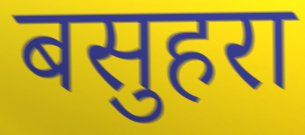
बसुहरा